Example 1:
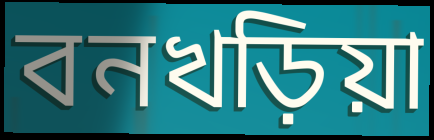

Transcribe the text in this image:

বনখড়িয়া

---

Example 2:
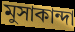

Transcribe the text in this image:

মুসাকান্দা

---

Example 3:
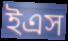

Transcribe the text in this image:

ইএস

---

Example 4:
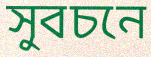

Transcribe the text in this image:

সুবচনে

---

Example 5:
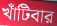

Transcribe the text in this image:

খাঁটিবার